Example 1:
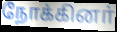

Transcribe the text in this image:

நோக்கினர்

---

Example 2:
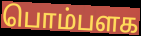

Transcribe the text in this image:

பொம்பளக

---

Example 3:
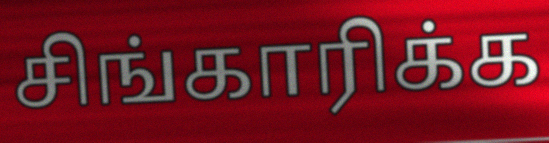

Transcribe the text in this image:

சிங்காரிக்க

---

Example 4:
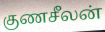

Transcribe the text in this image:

குணசீலன்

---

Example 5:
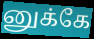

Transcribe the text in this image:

னுக்கே